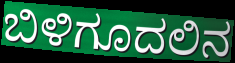
ಬಿಳಿಗೂದಲಿನ